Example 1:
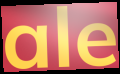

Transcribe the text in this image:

ale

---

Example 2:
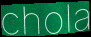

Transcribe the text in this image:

chola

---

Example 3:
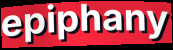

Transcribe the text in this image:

epiphany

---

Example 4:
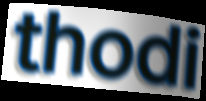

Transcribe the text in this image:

thodi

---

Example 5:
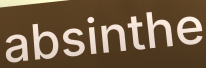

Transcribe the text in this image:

absinthe